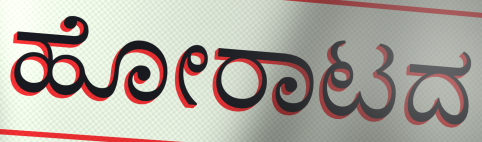
ಹೋರಾಟದ